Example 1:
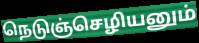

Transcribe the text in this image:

நெடுஞ்செழியனும்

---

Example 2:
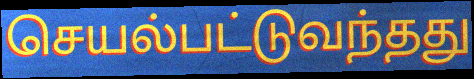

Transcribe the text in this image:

செயல்பட்டுவந்தது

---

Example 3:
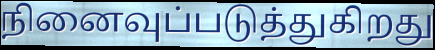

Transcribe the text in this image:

நினைவுப்படுத்துகிறது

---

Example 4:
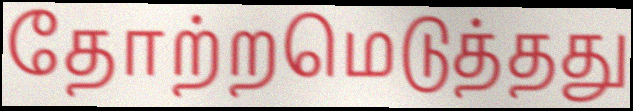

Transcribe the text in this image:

தோற்றமெடுத்தது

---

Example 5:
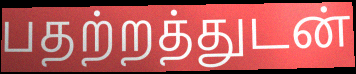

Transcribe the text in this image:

பதற்றத்துடன்